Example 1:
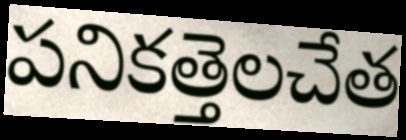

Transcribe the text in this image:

పనికత్తెలచేత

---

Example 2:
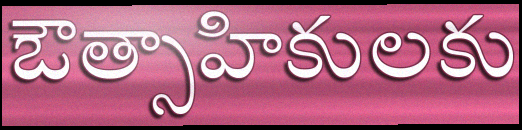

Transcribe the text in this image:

ఔత్సాహికులకు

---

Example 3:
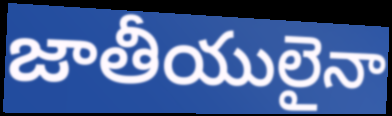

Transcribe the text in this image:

జాతీయులైనా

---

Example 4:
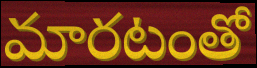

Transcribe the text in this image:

మారటంతో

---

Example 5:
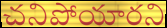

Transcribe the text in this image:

చనిపోయారని